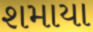
શમાયા